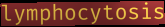
lymphocytosis